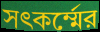
সৎকর্ম্মের